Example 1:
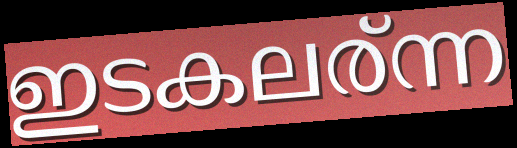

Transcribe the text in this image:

ഇടകലര്ന്ന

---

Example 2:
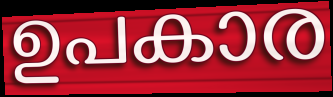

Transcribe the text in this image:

ഉപകാര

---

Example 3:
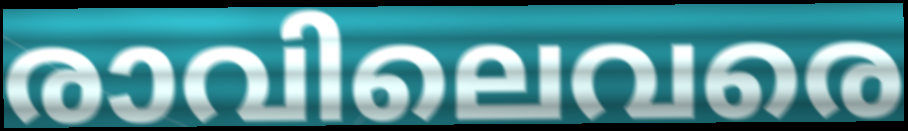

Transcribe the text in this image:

രാവിലെവരെ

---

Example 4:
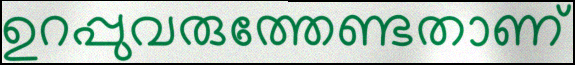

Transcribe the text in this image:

ഉറപ്പുവരുത്തേണ്ടതാണ്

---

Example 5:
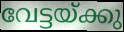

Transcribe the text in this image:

വേട്ടയ്ക്കു